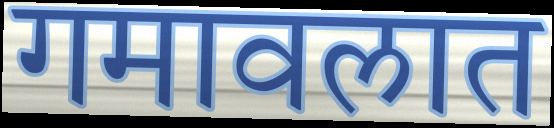
गमावलात